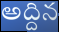
అద్దిన